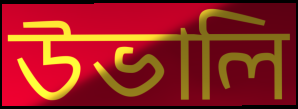
উভালি